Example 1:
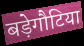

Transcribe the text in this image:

बड़ेगौटिया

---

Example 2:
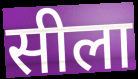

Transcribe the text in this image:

सीला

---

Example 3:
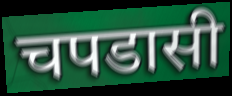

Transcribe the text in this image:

चपडासी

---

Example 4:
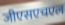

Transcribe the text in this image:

जीएसएचएल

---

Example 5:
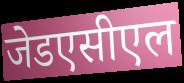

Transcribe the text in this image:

जेडएसीएल